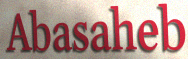
Abasaheb